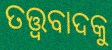
ତତ୍ତ୍ୱବାଦକୁ